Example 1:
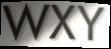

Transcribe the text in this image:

WXY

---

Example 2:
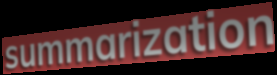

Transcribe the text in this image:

summarization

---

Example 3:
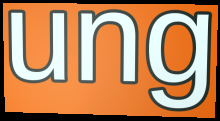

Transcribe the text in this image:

ung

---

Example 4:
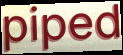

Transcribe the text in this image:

piped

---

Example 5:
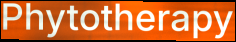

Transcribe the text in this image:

Phytotherapy